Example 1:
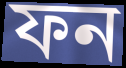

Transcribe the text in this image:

ফন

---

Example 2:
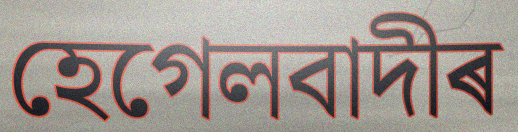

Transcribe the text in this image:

হেগেলবাদীৰ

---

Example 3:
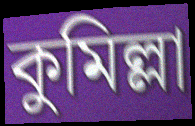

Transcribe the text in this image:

কুমিল্লা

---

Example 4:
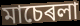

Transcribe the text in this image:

মাচেৰলা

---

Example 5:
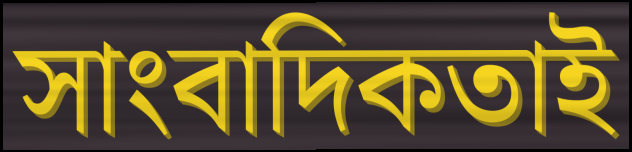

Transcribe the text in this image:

সাংবাদিকতাই